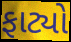
ફાટ્યો